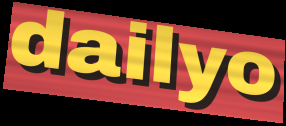
dailyo